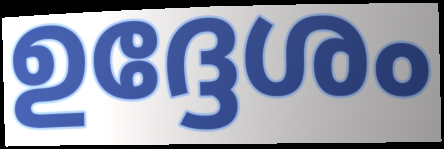
ഉദ്ദേശം